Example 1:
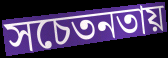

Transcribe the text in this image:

সচেতনতায়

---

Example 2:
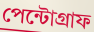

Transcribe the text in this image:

পেন্টোগ্রাফ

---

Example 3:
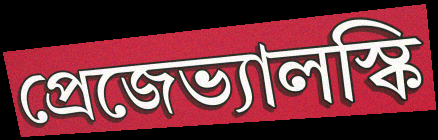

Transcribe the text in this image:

প্রেজেভ্যালস্কি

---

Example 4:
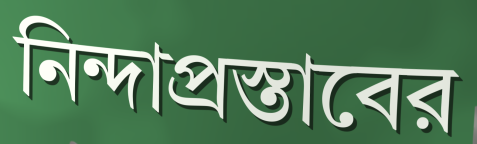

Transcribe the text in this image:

নিন্দাপ্রস্তাবের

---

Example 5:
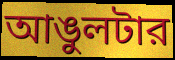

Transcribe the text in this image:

আঙুলটার